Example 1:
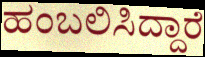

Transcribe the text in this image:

ಹಂಬಲಿಸಿದ್ದಾರೆ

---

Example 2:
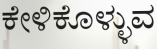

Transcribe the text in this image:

ಕೇಳಿಕೊಳ್ಳುವ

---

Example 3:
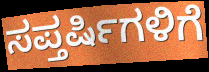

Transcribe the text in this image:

ಸಪ್ತರ್ಷಿಗಳಿಗೆ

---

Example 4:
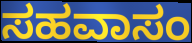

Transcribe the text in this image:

ಸಹವಾಸಂ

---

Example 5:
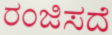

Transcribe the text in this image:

ರಂಜಿಸದೆ